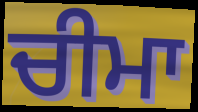
ਚੀਮਾ